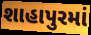
શાહાપુરમાં